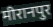
मीरानपुर